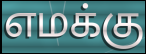
எமக்கு